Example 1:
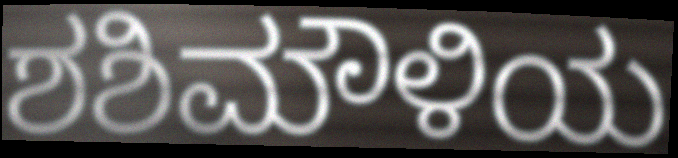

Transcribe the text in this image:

ಶಶಿಮೌಳಿಯ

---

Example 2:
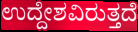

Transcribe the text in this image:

ಉದ್ದೇಶವಿರುತ್ತದೆ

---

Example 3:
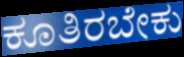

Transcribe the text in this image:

ಕೂತಿರಬೇಕು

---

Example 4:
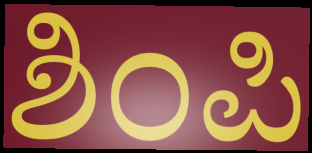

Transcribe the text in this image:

ಶಿಂಪಿ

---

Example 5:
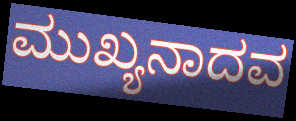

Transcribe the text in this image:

ಮುಖ್ಯನಾದವ